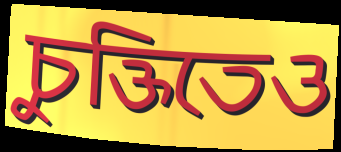
চুক্তিতেও